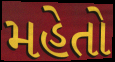
મહેતો